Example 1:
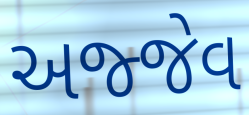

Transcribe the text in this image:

અજ્જેવ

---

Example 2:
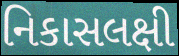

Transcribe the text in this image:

નિકાસલક્ષી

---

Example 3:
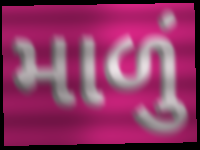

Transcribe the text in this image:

માળું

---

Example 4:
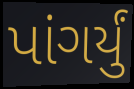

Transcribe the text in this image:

પાંગર્યું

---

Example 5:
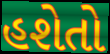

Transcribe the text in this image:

હશેતો